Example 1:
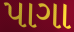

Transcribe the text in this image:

પાગા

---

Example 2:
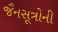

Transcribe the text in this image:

જૈનસૂત્રોની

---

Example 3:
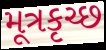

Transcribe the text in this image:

મૂત્રકૃચ્છ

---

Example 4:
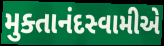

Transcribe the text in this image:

મુક્તાનંદસ્વામીએ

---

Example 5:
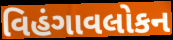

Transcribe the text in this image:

વિહંગાવલોકન